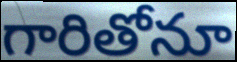
గారితోనూ